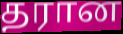
தரான